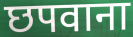
छपवाना